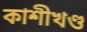
কাশীখণ্ড